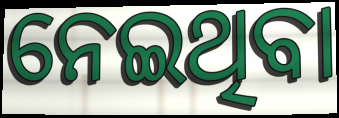
ନେଇଥିବା